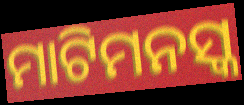
ମାଟିମନସ୍କ